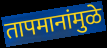
तापमानांमुळे